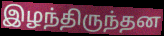
இழந்திருந்தன